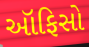
ઑફિસો